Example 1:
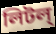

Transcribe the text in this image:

লিটল্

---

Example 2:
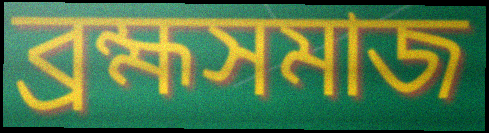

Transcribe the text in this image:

ব্রহ্মসমাজ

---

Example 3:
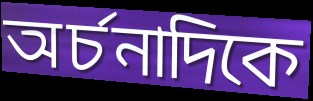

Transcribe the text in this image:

অর্চনাদিকে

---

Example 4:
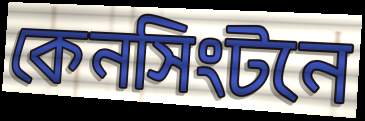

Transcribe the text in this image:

কেনসিংটনে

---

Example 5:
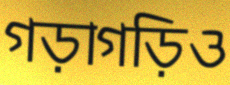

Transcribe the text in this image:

গড়াগড়িও